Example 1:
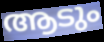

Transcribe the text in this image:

ആടും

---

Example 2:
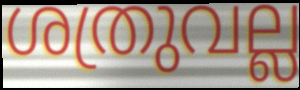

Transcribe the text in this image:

ശത്രുവല്ല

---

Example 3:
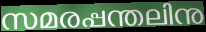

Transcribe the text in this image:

സമരപ്പന്തലിനു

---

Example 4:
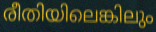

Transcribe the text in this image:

രീതിയിലെങ്കിലും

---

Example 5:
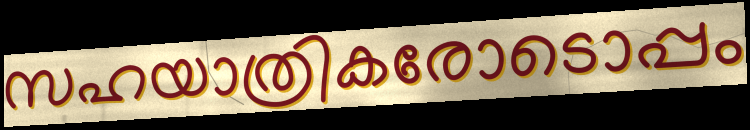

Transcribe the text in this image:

സഹയാത്രികരോടൊപ്പം